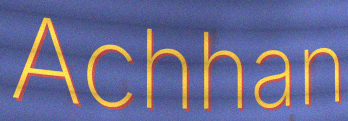
Achhan